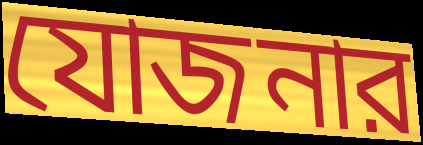
যোজনার